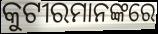
କୁଟୀରମାନଙ୍କରେ